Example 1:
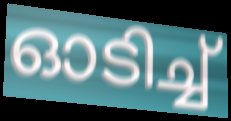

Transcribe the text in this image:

ഓടിച്ച്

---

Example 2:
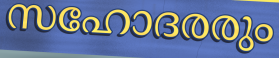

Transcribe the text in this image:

സഹോദരരും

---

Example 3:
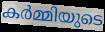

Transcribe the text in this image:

കർമ്മിയുടെ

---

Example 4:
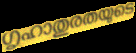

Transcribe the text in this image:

ഗൃഹാതുരതയുടെ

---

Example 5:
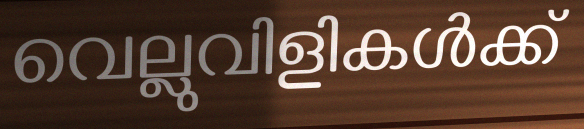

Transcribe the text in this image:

വെല്ലുവിളികൾക്ക്